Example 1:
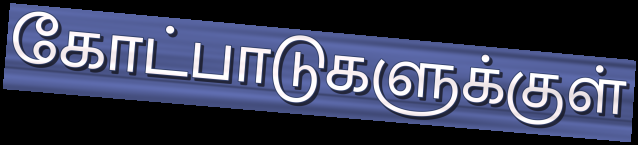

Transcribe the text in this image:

கோட்பாடுகளுக்குள்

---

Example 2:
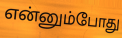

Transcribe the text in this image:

என்னும்போது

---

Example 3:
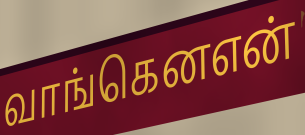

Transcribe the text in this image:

வாங்கெனஎன்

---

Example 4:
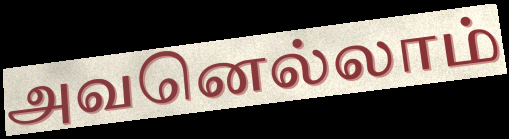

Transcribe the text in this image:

அவனெல்லாம்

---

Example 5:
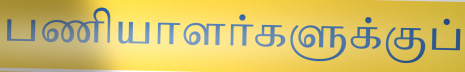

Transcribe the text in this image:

பணியாளர்களுக்குப்